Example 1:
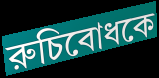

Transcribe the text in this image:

রুচিবোধকে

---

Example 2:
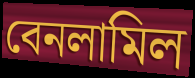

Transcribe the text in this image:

বেনলামিল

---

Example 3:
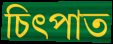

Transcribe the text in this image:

চিৎপাত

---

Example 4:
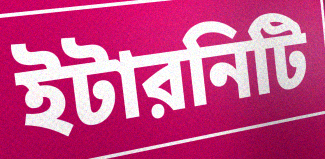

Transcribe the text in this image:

ইটারনিটি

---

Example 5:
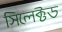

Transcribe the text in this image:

সিলেক্টড